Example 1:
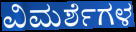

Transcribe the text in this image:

ವಿಮರ್ಶೆಗಳ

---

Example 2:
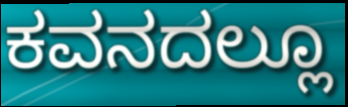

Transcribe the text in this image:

ಕವನದಲ್ಲೂ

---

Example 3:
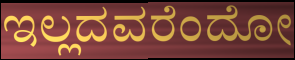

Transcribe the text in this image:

ಇಲ್ಲದವರೆಂದೋ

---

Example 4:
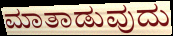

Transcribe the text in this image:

ಮಾತಾಡುವುದು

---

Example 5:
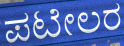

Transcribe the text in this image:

ಪಟೇಲರ